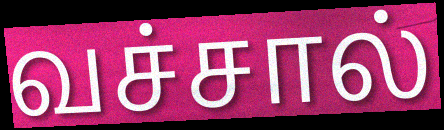
வச்சால்